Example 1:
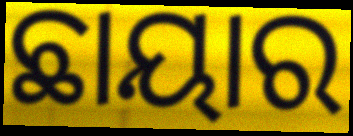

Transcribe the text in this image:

ଛାୟାର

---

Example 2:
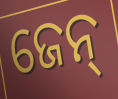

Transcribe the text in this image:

ଜେନ୍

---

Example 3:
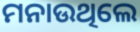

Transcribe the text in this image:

ମନାଉଥିଲେ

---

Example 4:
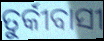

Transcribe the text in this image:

ତୁର୍କୀବାସୀ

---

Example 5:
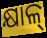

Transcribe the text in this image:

କ୍ଷାଳ୍